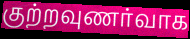
குற்றவுணர்வாக